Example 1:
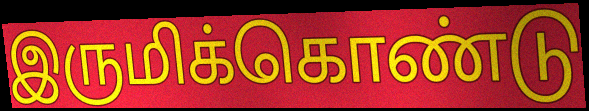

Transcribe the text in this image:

இருமிக்கொண்டு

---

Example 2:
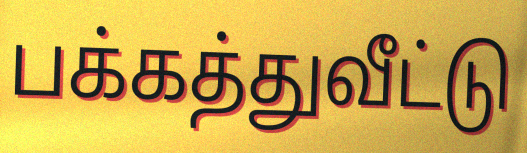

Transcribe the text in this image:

பக்கத்துவீட்டு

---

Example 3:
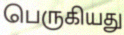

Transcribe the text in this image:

பெருகியது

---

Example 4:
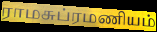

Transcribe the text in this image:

ராமசுப்ரமணியம்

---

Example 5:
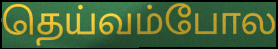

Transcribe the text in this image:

தெய்வம்போல